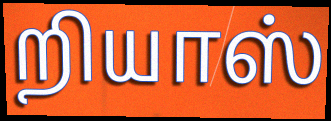
றியாஸ்